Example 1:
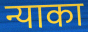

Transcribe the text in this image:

न्याका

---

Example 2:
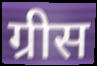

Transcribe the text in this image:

ग्रीस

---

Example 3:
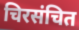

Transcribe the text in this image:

चिरसंचित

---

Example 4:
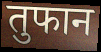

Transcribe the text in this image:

तुफान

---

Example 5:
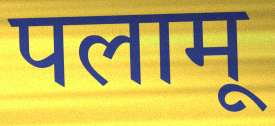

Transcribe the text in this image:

पलामू